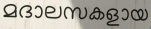
മദാലസകളായ